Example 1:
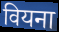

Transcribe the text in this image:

वियना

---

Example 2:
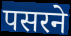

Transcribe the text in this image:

पसरने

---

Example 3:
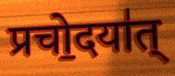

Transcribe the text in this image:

प्रचो॒दया॑त्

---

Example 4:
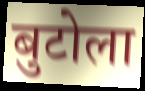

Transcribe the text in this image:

बुटोला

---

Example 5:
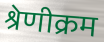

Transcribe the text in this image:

श्रेणीक्रम